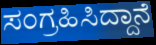
ಸಂಗ್ರಹಿಸಿದ್ದಾನೆ